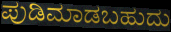
ಪುಡಿಮಾಡಬಹುದು